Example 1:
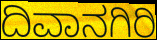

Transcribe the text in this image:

ದಿವಾನಗಿರಿ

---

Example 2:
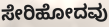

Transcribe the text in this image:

ಸೇರಿಹೋದವು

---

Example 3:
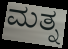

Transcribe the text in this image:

ಮತ್ನ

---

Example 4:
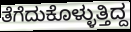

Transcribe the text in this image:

ತೆಗೆದುಕೊಳ್ಳುತ್ತಿದ್ದ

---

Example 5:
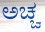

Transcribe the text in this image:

ಅಚ್ಚ